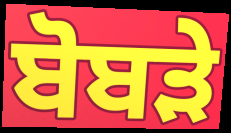
ਬੋਬੜੇ